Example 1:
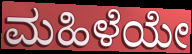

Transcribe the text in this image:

ಮಹಿಳೆಯೇ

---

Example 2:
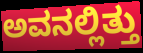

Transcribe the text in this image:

ಅವನಲ್ಲಿತ್ತು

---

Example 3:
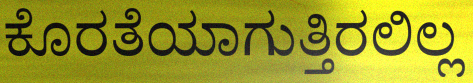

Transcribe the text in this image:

ಕೊರತೆಯಾಗುತ್ತಿರಲಿಲ್ಲ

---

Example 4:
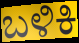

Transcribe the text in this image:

ಬಳಿಕಿ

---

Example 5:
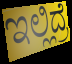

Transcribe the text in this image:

ಇಲ್ಲಿದ್ರೆ